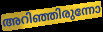
അറിഞ്ഞിരുന്നോ